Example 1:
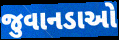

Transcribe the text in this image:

જુવાનડાઓ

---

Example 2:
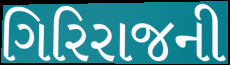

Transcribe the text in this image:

ગિરિરાજની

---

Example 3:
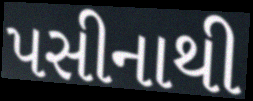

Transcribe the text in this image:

પસીનાથી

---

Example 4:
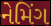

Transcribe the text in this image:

નેમિંગ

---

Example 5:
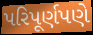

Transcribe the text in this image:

પરિપૂર્ણપણે